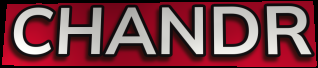
CHANDR